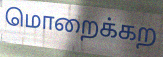
மொறைக்கற